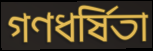
গণধর্ষিতা